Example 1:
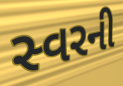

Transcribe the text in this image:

સ્વરની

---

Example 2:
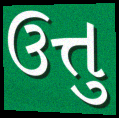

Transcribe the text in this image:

ઉત્તુ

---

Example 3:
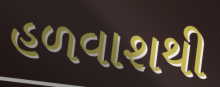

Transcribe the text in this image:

હળવાશથી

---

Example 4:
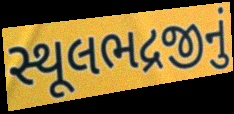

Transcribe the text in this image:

સ્થૂલભદ્રજીનું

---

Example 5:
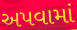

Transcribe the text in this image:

અપવામાં